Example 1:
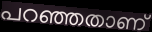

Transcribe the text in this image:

പറഞ്ഞതാണ്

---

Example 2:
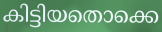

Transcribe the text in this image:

കിട്ടിയതൊക്കെ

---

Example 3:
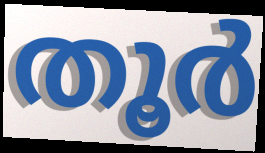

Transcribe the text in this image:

തൂർ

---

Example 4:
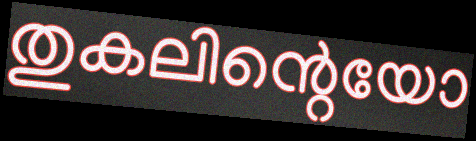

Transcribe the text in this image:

തുകലിന്റെയോ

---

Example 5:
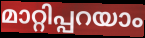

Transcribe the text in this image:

മാറ്റിപ്പറയാം